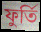
ফুৰ্তি